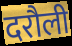
दरौली